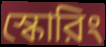
স্কোরিং